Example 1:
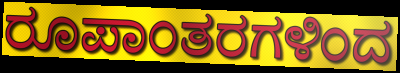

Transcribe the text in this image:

ರೂಪಾಂತರಗಳಿಂದ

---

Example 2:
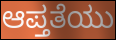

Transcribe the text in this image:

ಆಪ್ತತೆಯು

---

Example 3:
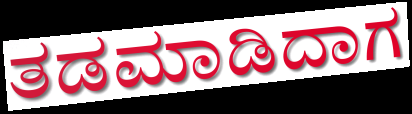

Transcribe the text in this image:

ತಡಮಾಡಿದಾಗ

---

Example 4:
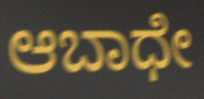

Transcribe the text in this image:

ಆಬಾಧೇ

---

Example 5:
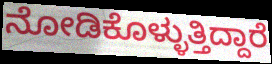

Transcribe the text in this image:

ನೋಡಿಕೊಳ್ಳುತ್ತಿದ್ದಾರೆ